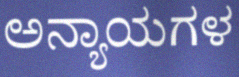
ಅನ್ಯಾಯಗಳ